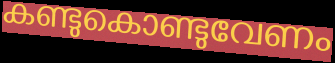
കണ്ടുകൊണ്ടുവേണം